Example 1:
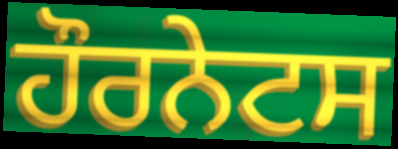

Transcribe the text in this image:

ਹੌਰਨੇਟਸ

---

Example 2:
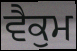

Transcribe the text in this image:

ਵੈਕੁਮ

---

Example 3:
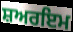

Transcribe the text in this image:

ਸ਼ਅਰਇਮ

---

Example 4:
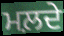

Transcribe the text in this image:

ਮਲ਼ਦੇ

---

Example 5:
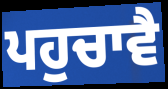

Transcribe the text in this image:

ਪਹੁਚਾਵੈ